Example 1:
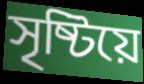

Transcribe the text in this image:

সৃষ্টিয়ে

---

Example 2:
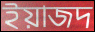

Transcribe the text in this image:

ইয়াজদ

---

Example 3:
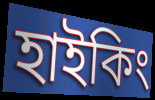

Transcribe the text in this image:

হাইকিং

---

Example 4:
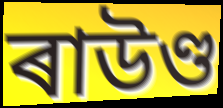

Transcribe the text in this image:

ৰাউণ্ড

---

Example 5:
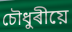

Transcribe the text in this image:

চৌধুৰীয়ে